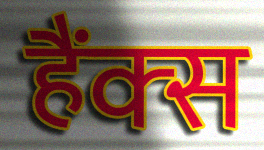
हैंक्‍स